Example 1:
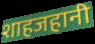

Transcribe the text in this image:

शाहजहानी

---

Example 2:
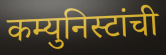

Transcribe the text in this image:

कम्युनिस्टांची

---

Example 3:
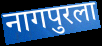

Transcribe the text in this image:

नागपुरला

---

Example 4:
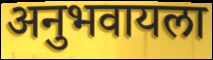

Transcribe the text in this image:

अनुभवायला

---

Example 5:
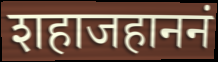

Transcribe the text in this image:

शहाजहाननं